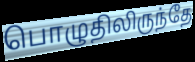
பொழுதிலிருந்தே